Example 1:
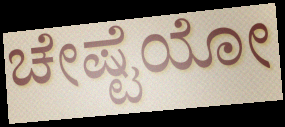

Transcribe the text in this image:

ಚೇಷ್ಟೆಯೋ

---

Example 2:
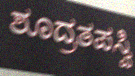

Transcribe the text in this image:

ಶೂದ್ರತಪಸ್ವಿ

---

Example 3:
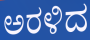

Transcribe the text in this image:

ಅರಳಿದ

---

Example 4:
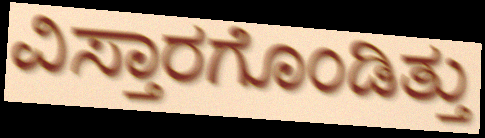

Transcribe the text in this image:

ವಿಸ್ತಾರಗೊಂಡಿತ್ತು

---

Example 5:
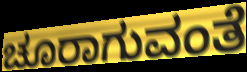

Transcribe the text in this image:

ಚೂರಾಗುವಂತೆ